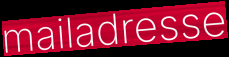
mailadresse